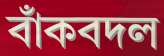
বাঁকবদল